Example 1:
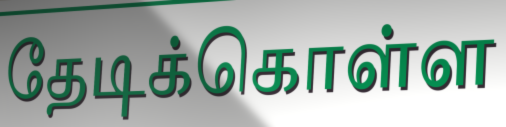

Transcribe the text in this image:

தேடிக்கொள்ள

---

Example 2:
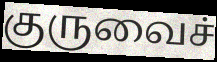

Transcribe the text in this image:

குருவைச்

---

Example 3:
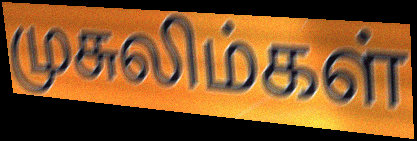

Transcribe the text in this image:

முசுலிம்கள்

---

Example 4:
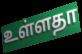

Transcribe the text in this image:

உள்ளதா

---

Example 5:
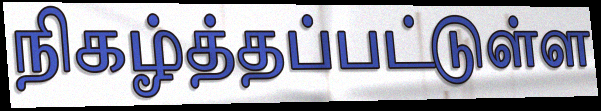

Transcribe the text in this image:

நிகழ்த்தப்பட்டுள்ள